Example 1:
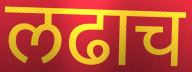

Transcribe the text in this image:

लढाच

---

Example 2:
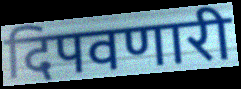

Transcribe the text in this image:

दिपवणारी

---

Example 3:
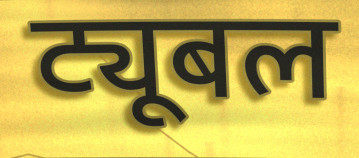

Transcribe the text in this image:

ट्यूबल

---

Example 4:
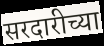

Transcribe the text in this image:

सरदारीच्या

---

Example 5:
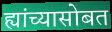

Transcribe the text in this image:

ह्यांच्यासोबत